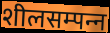
शीलसम्पन्न